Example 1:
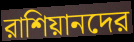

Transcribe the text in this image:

রাশিয়ানদের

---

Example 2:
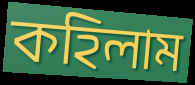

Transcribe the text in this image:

কহিলাম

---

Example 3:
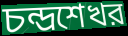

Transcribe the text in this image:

চন্দ্রশেখর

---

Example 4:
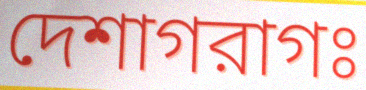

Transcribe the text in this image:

দেশাগরাগঃ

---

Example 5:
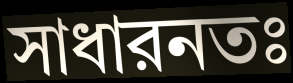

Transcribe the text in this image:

সাধারনতঃ